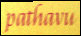
pathavu